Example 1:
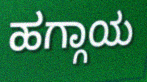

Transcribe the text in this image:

ಹಗ್ಗಾಯ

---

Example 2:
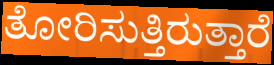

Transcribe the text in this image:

ತೋರಿಸುತ್ತಿರುತ್ತಾರೆ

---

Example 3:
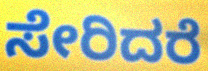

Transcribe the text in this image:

ಸೇರಿದರೆ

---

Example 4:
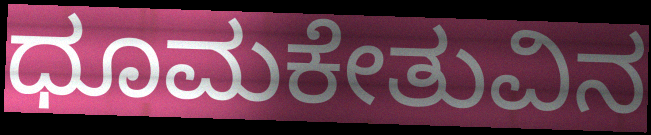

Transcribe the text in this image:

ಧೂಮಕೇತುವಿನ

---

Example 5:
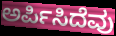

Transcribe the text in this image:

ಅರ್ಪಿಸಿದೆವು